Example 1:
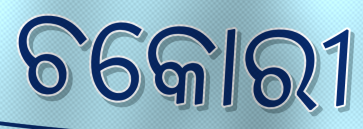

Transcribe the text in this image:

ଚକୋରୀ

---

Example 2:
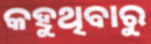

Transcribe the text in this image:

କହୁଥିବାରୁ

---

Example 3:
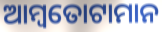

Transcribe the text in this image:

ଆମ୍ବତୋଟାମାନ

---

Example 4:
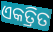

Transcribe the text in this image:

ଏକତ୍ରିତ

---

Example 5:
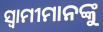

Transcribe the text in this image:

ସ୍ବାମୀମାନଙ୍କୁ